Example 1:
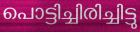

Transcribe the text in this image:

പൊട്ടിച്ചിരിച്ചിട്ടു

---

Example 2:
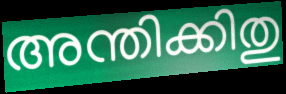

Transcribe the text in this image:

അന്തിക്കിതു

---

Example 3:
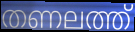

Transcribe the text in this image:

തണലത്ത്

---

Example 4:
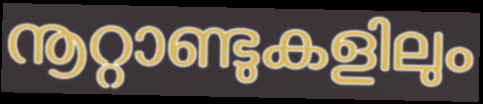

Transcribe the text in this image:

നൂറ്റാണ്ടുകളിലും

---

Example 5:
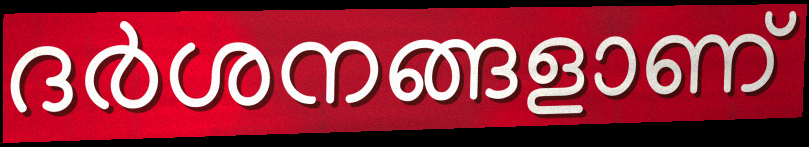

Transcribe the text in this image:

ദർശനങ്ങളാണ്